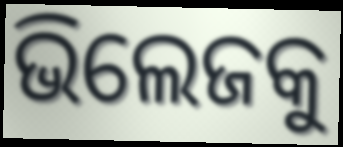
ଭିଲେଜକୁ